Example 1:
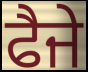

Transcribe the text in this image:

ਫੈਜੇ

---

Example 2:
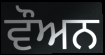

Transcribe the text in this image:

ਵੌਅਨ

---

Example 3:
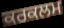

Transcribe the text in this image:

ਕਰਕਲਮ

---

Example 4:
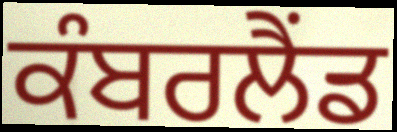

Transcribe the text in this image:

ਕੰਬਰਲੈਂਡ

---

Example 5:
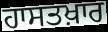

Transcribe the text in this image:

ਹਾਸਤਖ਼ਾਰ